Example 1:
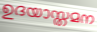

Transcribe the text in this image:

ഉദയാസ്തമന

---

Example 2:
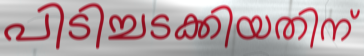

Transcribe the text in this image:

പിടിച്ചടക്കിയതിന്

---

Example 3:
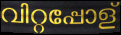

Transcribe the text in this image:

വിറ്റപ്പോള്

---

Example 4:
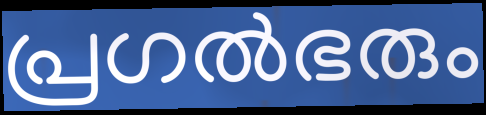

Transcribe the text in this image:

പ്രഗൽഭരും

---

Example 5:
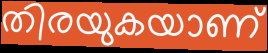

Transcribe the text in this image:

തിരയുകയാണ്